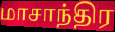
மாசாந்திர